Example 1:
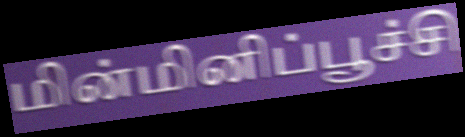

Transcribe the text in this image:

மின்மினிப்பூச்சி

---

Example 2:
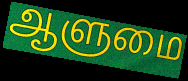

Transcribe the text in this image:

ஆளுமை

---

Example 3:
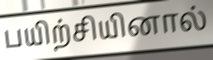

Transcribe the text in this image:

பயிற்சியினால்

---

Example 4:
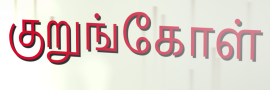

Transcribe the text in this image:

குறுங்கோள்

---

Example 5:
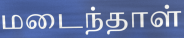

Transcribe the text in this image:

மடைந்தாள்